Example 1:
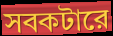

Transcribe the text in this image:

সবকটারে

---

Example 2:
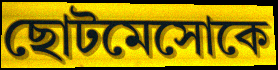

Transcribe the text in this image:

ছোটমেসোকে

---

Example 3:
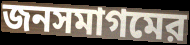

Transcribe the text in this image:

জনসমাগমের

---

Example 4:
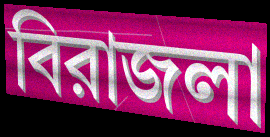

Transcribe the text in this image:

বিরাজলা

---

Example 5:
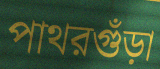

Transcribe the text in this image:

পাথরগুঁড়া